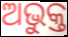
ଅଭୁକ୍ତ